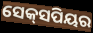
ସେକ୍‍ସପିୟର